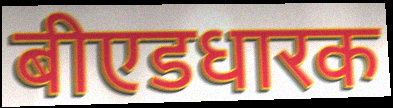
बीएडधारक